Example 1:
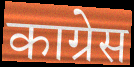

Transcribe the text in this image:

काग्रेस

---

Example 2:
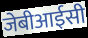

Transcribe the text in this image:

जेबीआईसी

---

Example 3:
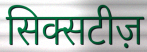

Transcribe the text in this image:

सिक्सटीज़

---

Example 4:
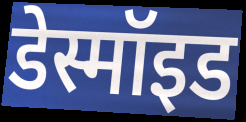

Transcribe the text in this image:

डेस्मॉइड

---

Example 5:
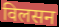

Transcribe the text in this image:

विलसन